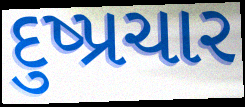
દુષ્પ્રચાર